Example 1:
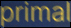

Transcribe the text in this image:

primal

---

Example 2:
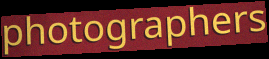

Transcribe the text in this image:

photographers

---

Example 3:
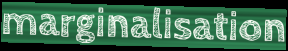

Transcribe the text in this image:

marginalisation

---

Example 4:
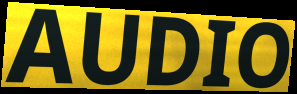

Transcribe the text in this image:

AUDIO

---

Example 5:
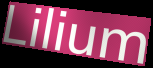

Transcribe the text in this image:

Lilium